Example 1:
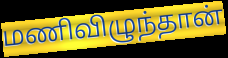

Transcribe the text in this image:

மணிவிழுந்தான்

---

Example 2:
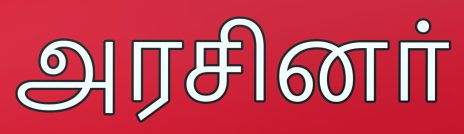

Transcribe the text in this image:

அரசினர்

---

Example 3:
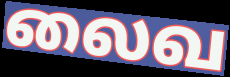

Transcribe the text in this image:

லைவ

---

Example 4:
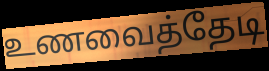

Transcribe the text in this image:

உணவைத்தேடி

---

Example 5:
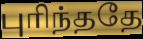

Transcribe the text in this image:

புரிந்ததே